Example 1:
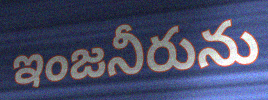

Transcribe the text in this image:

ఇంజనీరును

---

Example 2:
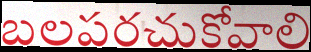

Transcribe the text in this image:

బలపరచుకోవాలి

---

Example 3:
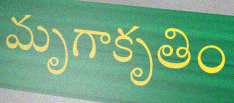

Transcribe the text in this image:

మృగాకృతిం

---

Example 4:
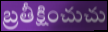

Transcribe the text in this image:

బ్రతీక్షించుచు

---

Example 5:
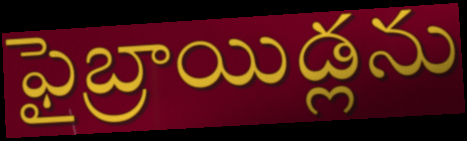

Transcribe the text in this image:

ఫైబ్రాయిడ్లను